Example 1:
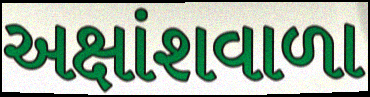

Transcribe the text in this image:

અક્ષાંશવાળા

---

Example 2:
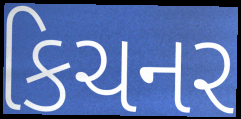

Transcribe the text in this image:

કિચનર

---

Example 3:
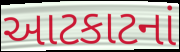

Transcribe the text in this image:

આટકાટનાં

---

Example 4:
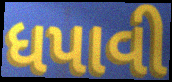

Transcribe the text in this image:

ધપાવી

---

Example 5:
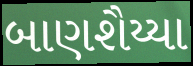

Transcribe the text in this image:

બાણશૈય્યા